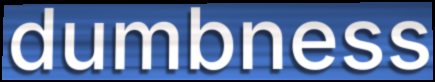
dumbness